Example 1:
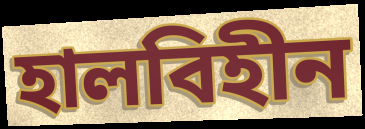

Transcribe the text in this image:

হালবিহীন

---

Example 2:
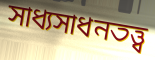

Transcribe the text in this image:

সাধ্যসাধনতত্ত্ব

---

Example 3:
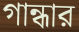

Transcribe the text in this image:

গান্ধার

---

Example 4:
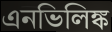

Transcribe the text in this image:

এনভিলিঙ্ক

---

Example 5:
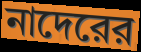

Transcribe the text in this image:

নাদেরের